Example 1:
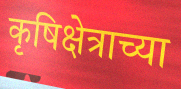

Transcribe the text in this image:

कृषिक्षेत्राच्या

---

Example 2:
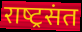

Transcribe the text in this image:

राष्ट्रसंत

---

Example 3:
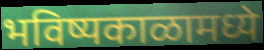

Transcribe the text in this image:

भविष्यकाळामध्ये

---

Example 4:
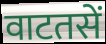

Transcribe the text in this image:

वाटतसें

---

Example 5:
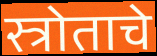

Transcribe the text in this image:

स्त्रोताचे